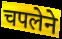
चपलेने